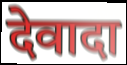
देवादा